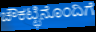
ಚೌಕಟ್ಟಿನೊಂದಿಗೆ